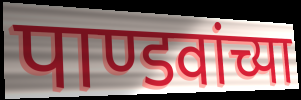
पाण्डवांच्या